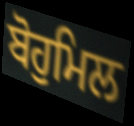
ਬੋਹੁਮਿਲ